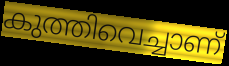
കുത്തിവെച്ചാണ്